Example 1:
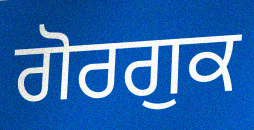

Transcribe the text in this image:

ਗੋਰਗੁਕ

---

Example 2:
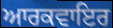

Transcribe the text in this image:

ਆਰਕਵਾਇਰ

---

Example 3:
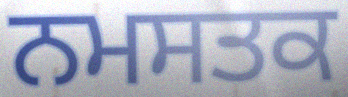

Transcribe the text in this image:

ਨਮਸਤਕ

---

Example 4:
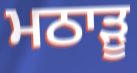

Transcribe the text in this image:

ਮਠਾੜੂ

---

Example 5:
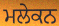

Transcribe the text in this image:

ਮਲੇਕਨ